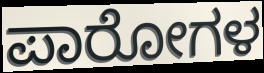
ಪಾರೋಗಳ